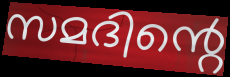
സമദിന്റെ